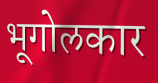
भूगोलकार